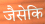
जैसेकि